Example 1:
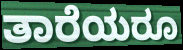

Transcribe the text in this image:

ತಾರೆಯರೂ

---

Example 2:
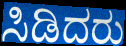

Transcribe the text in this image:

ಸಿಡಿದರು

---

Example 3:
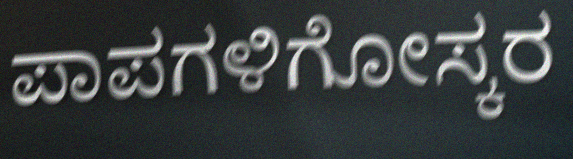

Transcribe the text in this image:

ಪಾಪಗಳಿಗೋಸ್ಕರ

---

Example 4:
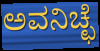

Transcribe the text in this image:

ಅವನಿಚ್ಛೆ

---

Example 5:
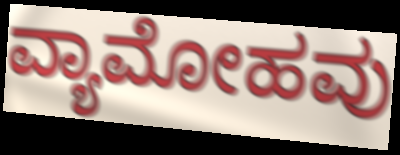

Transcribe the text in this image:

ವ್ಯಾಮೋಹವು